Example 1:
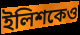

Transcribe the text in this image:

ইলিশকেও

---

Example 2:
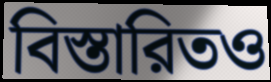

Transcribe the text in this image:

বিস্তারিতও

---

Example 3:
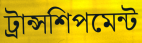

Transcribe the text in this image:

ট্রান্সশিপমেন্ট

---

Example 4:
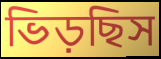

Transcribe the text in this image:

ভিড়ছিস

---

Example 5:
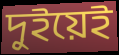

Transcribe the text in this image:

দুইয়েই